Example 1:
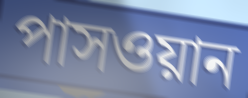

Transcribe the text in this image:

পাসওয়ান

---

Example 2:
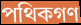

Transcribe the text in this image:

পথিকগণ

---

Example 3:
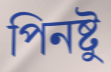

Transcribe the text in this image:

পিনষ্টু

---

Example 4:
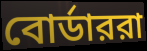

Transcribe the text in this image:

বোর্ডাররা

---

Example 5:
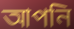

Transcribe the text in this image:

আপনি